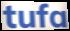
tufa